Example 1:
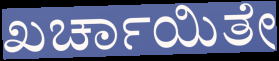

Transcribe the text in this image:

ಖರ್ಚಾಯಿತೇ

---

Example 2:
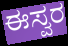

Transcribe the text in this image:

ಈಸ್ವರ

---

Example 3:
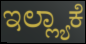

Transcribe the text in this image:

ಇಲ್ಲ್ಯಾಕೆ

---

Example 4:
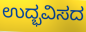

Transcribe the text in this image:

ಉದ್ಭವಿಸದ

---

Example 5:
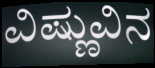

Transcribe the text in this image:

ವಿಷ್ಣುವಿನ